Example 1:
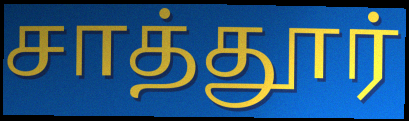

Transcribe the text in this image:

சாத்தூர்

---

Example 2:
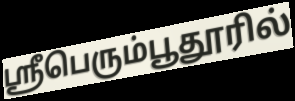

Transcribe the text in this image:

ஸ்ரீபெரும்பூதூரில்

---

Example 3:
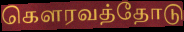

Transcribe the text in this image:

கௌரவத்தோடு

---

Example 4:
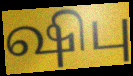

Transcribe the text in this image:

ஷிபு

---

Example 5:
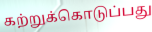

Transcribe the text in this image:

கற்றுக்கொடுப்பது